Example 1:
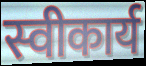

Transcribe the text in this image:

स्‍वीकार्य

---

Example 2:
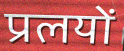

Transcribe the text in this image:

प्रलयों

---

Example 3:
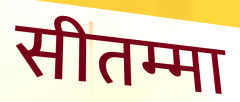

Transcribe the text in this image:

सीतम्मा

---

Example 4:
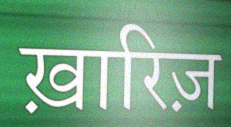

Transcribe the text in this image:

ख़ारिज़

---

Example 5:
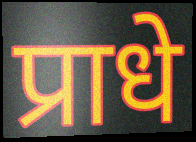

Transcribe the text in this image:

प्राधे